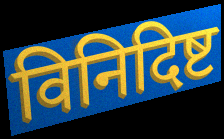
विनिदिष्ट